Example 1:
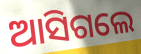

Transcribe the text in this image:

ଆସିଗଲେ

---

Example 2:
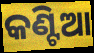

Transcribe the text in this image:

କଣ୍ଟିଆ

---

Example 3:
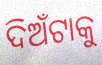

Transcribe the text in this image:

ଦିଅଁଟାକୁ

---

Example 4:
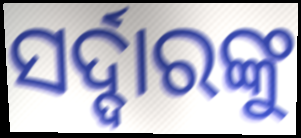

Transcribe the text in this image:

ସର୍ଦ୍ଦାରଙ୍କୁ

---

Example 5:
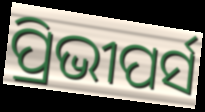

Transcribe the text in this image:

ପ୍ରିଭୀପର୍ସ